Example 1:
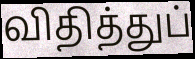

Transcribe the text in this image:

விதித்துப்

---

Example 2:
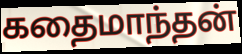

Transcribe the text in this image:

கதைமாந்தன்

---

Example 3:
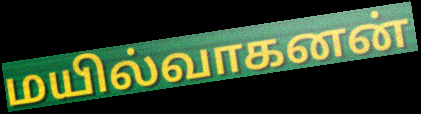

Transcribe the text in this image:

மயில்வாகனன்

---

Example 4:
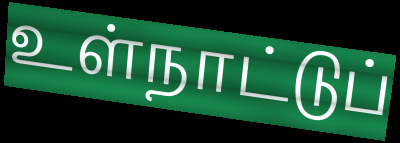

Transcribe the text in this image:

உள்நாட்டுப்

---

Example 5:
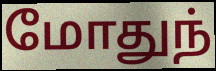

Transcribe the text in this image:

மோதுந்